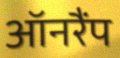
ऑनरैंप